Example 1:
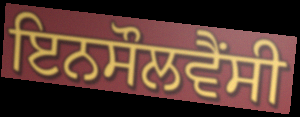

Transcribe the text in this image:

ਇਨਸੌਲਵੈਂਸੀ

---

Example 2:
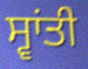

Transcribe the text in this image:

ਸ੍ਵਾਂਤੀ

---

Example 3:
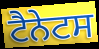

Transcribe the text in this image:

ਟੈਨੇਟਸ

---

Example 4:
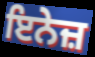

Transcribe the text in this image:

ਇਨੇਜ਼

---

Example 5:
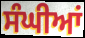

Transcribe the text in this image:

ਸੰਘੀਆਂ